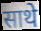
साथे